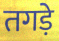
तगड़े